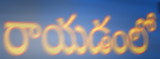
రాయడంలో